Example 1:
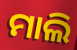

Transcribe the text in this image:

ମାଲି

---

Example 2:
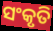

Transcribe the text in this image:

ସଂକୃତି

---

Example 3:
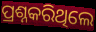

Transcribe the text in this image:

ପ୍ରଶ୍ନକରିଥିଲେ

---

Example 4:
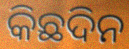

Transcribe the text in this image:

କିଛଦିନ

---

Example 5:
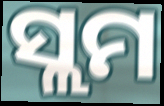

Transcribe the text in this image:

ସ୍ଲମ